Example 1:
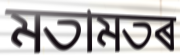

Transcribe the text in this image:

মতামতৰ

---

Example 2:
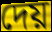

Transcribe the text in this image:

দেয়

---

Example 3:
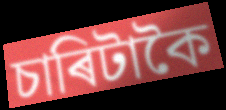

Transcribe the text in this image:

চাৰিটাকৈ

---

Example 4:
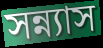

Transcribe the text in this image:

সন্ন্যাস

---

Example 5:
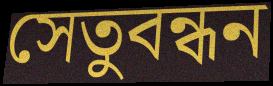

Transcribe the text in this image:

সেতুবন্ধন